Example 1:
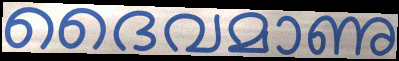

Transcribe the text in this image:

ദൈവമാണു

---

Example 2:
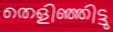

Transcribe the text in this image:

തെളിഞ്ഞിട്ടു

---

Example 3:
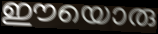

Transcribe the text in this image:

ഈയൊരു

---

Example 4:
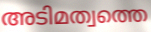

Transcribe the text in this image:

അടിമത്വത്തെ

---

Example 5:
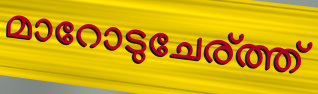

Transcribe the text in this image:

മാറോടുചേര്ത്ത്